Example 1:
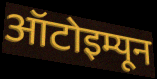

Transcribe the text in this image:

ऑटोइम्यून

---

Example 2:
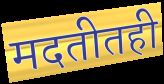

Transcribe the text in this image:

मदतीतही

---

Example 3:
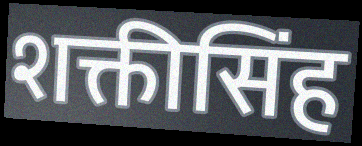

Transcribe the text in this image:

शक्तीसिंह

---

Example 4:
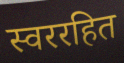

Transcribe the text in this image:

स्वररहित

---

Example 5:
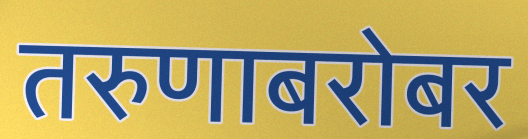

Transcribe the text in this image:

तरुणाबरोबर